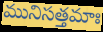
మునిసత్తమాః